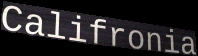
Califronia